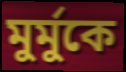
মুর্মুকে